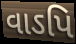
વાઽપિ